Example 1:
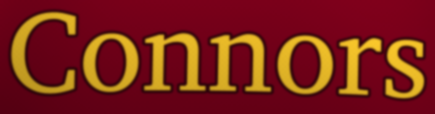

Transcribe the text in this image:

Connors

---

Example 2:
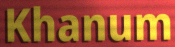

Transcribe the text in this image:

Khanum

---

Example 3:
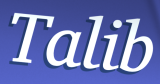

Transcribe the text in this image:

Talib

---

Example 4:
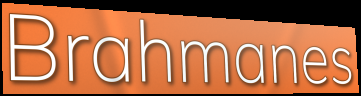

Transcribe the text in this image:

Brahmanes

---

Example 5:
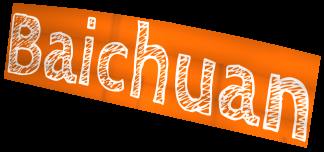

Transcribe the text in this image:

Baichuan